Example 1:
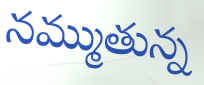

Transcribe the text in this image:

నమ్ముతున్న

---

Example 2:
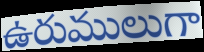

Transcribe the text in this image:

ఉరుములుగా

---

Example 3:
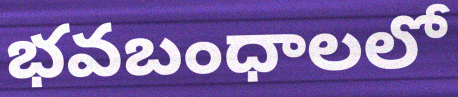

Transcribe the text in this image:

భవబంధాలలో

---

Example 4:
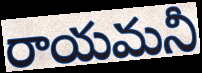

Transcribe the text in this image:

రాయమనీ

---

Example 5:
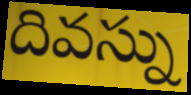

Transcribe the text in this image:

దివస్ను